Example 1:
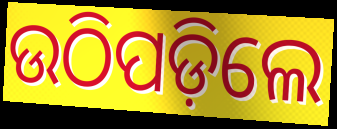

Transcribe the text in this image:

ଉଠିପଡ଼ିଲେ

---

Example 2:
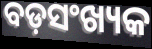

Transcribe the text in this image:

ବଡ଼ସଂଖ୍ୟକ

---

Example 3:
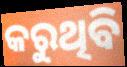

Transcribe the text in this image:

କରୁଥିବି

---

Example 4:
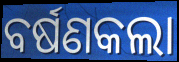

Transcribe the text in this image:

ବର୍ଷଣକଲା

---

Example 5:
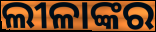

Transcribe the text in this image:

ଲୀଳାଙ୍କର